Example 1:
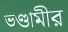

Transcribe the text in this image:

ভণ্ডামীর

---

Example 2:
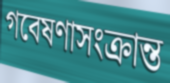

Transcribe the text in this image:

গবেষণাসংক্রান্ত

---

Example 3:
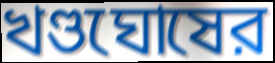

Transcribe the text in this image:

খণ্ডঘোষের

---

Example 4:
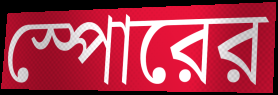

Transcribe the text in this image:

স্পোরের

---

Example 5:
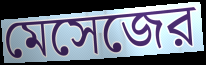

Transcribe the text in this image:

মেসেজের